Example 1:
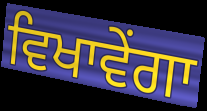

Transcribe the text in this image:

ਵਿਖਾਵੇਂਗਾ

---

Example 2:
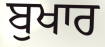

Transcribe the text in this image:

ਬੁਖਾਰ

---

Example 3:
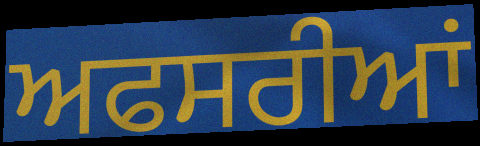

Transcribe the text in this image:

ਅਫਸਰੀਆਂ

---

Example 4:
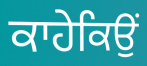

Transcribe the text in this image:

ਕਾਹੇਕਿਉਂ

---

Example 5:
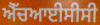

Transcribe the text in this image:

ਐੱਚਆਈਸੀਸੀ